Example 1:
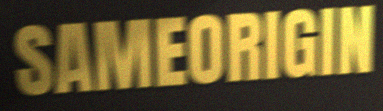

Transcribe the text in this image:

SAMEORIGIN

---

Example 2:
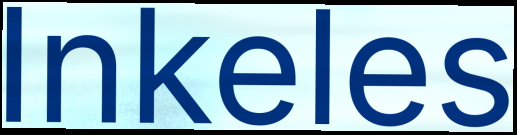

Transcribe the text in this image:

Inkeles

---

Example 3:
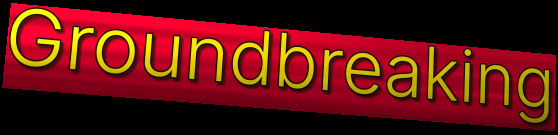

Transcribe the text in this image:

Groundbreaking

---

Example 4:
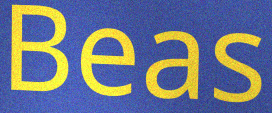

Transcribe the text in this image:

Beas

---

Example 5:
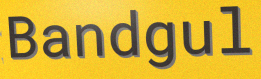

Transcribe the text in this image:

Bandgul